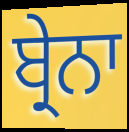
ਬ੍ਰੇਨਾ